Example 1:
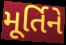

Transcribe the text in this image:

મૂર્તિને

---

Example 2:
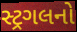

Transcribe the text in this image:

સ્ટ્રગલનો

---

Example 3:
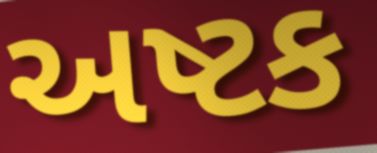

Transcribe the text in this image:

અષ્ટક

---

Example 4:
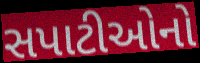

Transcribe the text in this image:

સપાટીઓનો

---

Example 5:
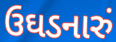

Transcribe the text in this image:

ઉઘડનારું